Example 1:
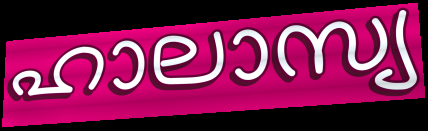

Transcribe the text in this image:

ഹാലാസ്യ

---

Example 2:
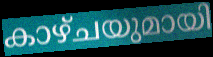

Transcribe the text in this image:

കാഴ്ചയുമായി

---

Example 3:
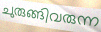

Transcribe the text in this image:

ചുരുങ്ങിവരുന്ന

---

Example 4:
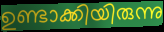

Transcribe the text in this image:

ഉണ്ടാക്കിയിരുന്നു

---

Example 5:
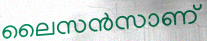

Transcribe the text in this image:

ലൈസൻസാണ്